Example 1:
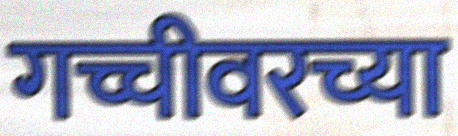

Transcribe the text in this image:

गच्चीवरच्या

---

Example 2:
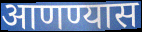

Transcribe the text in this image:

आणण्यास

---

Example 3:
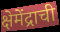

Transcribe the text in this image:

क्षेमेंद्राची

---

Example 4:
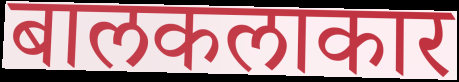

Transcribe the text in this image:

बालकलाकार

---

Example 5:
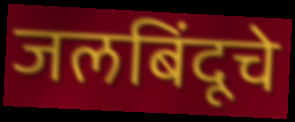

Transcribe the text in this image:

जलबिंदूचे